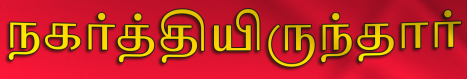
நகர்த்தியிருந்தார்